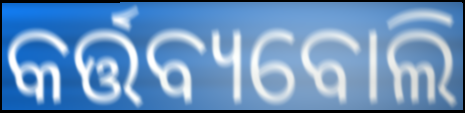
କର୍ତ୍ତବ୍ୟବୋଲି